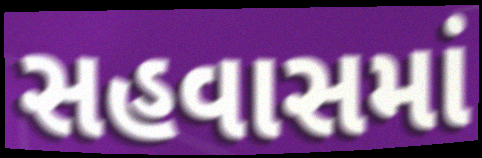
સહવાસમાં